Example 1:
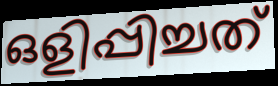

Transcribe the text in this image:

ഒളിപ്പിച്ചത്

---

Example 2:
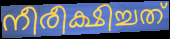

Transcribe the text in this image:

നീരീക്ഷിച്ചത്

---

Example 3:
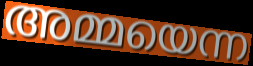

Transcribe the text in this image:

അമ്മയെന്ന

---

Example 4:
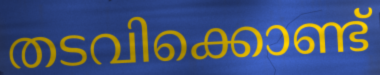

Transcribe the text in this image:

തടവിക്കൊണ്ട്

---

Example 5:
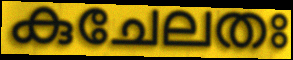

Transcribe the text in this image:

കുചേലതഃ